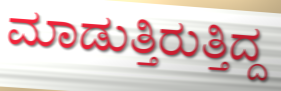
ಮಾಡುತ್ತಿರುತ್ತಿದ್ದ